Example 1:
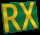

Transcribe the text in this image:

RX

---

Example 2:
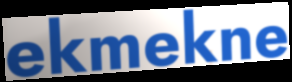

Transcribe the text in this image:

ekmekne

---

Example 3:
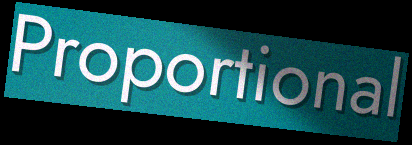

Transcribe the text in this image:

Proportional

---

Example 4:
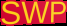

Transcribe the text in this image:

SWP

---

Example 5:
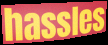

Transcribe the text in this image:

hassles